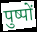
पुष्पों